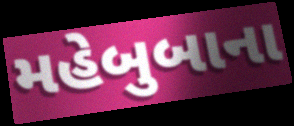
મહેબુબાના